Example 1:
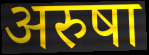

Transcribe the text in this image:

अरुषा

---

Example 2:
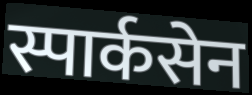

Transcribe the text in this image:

स्पार्कसेन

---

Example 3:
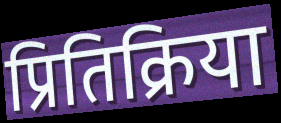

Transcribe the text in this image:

प्रितिक्रिया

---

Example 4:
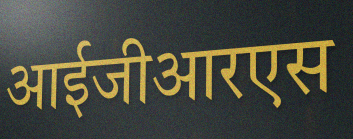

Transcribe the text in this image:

आईजीआरएस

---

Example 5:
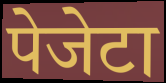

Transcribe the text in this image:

पेजेटा